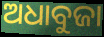
ଅଧାବୁଜା